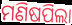
ମଣିଷପିଲା